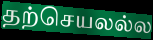
தற்செயலல்ல